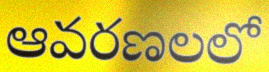
ఆవరణలలో